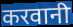
करवानी